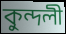
কুন্দলী